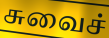
சுவைச்